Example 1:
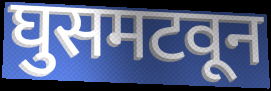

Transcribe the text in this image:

घुसमटवून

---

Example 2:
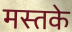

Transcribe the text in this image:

मस्तके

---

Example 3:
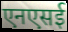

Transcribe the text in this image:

एनएसई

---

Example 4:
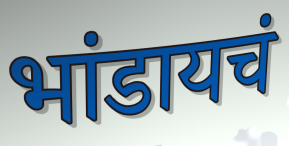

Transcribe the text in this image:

भांडायचं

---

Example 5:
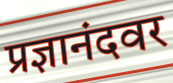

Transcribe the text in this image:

प्रज्ञानंदवर